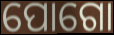
ପୋଗୋ